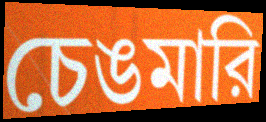
চেঙমারি